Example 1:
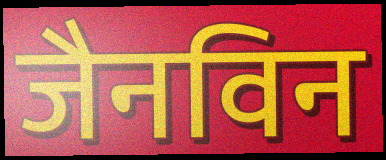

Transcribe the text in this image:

जैनविन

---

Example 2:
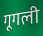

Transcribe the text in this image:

गूगली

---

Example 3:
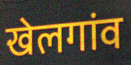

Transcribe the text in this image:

खेलगांव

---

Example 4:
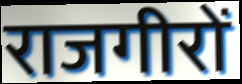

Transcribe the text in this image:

राजगीरों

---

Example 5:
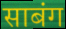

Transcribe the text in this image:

साबंग